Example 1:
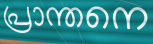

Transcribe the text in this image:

പ്രാന്തനെ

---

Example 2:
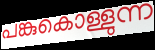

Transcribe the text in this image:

പങ്കുകൊള്ളുന്ന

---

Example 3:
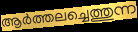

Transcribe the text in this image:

ആർത്തലച്ചെത്തുന്ന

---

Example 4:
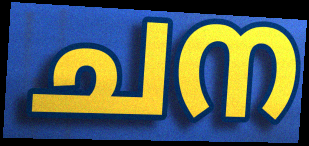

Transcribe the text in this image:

ചന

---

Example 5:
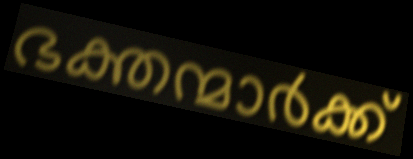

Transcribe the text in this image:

ഭക്തന്മാർക്ക്